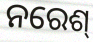
ନରେଶ୍